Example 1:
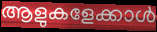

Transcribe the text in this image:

ആളുകളേക്കാൾ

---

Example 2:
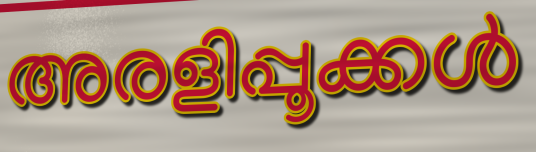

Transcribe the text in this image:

അരളിപ്പൂക്കൾ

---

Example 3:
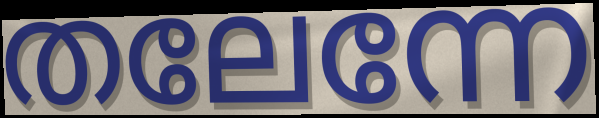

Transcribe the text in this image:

തലേന്നേ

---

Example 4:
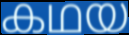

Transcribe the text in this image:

കഥയ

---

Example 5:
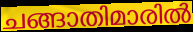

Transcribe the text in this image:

ചങ്ങാതിമാരിൽ